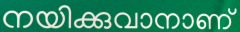
നയിക്കുവാനാണ്